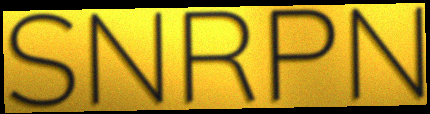
SNRPN